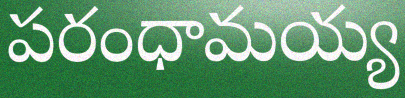
పరంధామయ్య